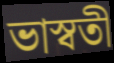
ভাস্বতী